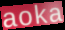
aoka